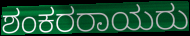
ಶಂಕರರಾಯರು